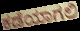
ಕಡೆಯಾಗಲಿ